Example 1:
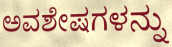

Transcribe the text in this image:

ಅವಶೇಷಗಳನ್ನು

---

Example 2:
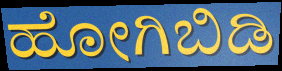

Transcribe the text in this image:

ಹೋಗಿಬಿಡಿ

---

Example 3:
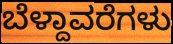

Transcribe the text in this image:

ಬೆಳ್ದಾವರೆಗಳು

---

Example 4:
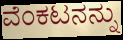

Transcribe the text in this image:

ವೆಂಕಟನನ್ನು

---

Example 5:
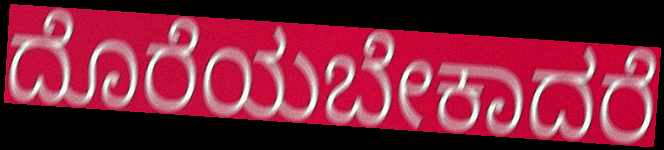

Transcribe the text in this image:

ದೊರೆಯಬೇಕಾದರೆ